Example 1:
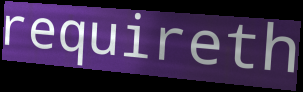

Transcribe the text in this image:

requireth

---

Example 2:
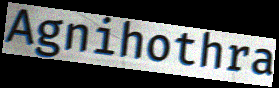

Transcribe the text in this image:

Agnihothra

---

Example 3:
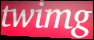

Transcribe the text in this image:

twimg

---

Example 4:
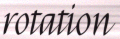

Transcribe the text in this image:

rotation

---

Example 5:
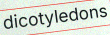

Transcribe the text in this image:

dicotyledons